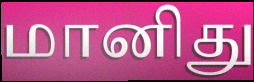
மானிது